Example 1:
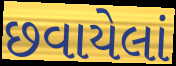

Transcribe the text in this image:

છવાયેલાં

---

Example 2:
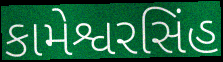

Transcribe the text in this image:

કામેશ્વરસિંહ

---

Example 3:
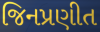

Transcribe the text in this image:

જિનપ્રણીત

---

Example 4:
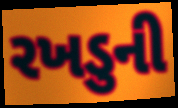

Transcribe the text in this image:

રખડુની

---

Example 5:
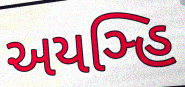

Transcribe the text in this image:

અયઞ્હિ